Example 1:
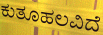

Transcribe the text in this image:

ಕುತೂಹಲವಿದೆ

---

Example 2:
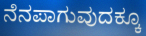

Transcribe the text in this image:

ನೆನಪಾಗುವುದಕ್ಕೂ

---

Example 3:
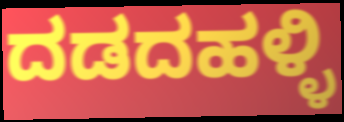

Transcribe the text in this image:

ದಡದಹಳ್ಳಿ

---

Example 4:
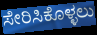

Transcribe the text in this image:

ಸೇರಿಸಿಕೊಳ್ಳಲು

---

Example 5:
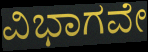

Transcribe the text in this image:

ವಿಭಾಗವೇ